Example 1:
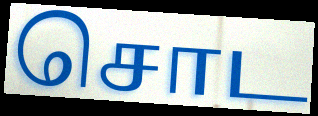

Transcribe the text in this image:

சொட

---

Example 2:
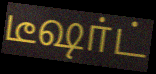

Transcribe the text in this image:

டீஷர்ட்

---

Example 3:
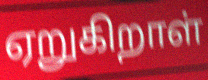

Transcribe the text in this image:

ஏறுகிறாள்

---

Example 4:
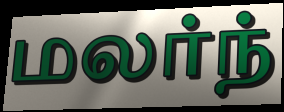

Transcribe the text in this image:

மலர்ந்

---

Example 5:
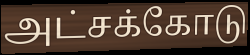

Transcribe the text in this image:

அட்சக்கோடு